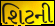
શિટની